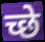
च्छे